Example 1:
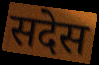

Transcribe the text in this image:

सदेस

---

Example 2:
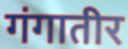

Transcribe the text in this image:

गंगातीर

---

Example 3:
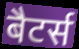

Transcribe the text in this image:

बैटर्स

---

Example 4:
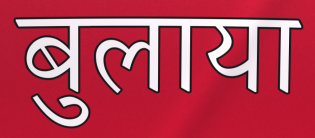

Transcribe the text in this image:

बुलाया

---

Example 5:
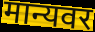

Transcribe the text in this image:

मान्यवर